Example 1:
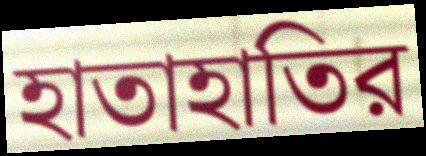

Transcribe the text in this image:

হাতাহাতির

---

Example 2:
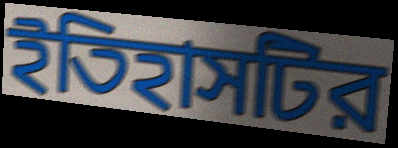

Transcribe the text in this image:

ইতিহাসটির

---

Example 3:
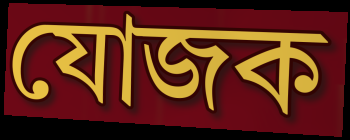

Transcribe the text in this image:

যোজক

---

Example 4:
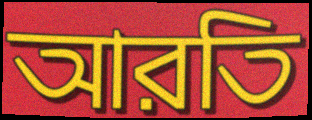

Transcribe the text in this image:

আরতি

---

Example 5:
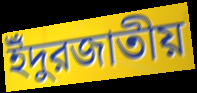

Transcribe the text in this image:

ইঁদুরজাতীয়